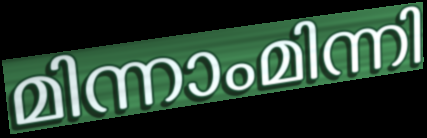
മിന്നാംമിന്നി